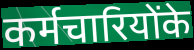
कर्मचारियोंके